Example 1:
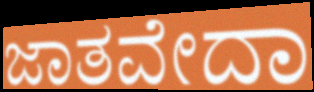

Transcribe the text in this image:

ಜಾತವೇದಾ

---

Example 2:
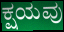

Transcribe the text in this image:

ಕ್ಷಯವು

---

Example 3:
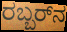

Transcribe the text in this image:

ರಬ್ಬರ್‌ನ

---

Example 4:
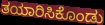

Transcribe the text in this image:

ತಯಾರಿಸಿಕೊಂಡು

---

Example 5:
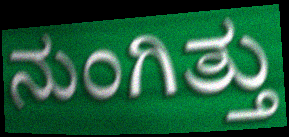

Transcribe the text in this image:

ನುಂಗಿತ್ತು